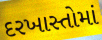
દરખાસ્તોમાં